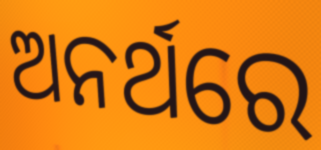
ଅନର୍ଥରେ